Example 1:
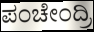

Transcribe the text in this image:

ಪಂಚೇಂದ್ರಿ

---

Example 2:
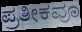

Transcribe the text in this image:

ಪ್ರತೀಕವೂ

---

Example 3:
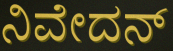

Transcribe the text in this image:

ನಿವೇದನ್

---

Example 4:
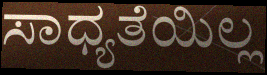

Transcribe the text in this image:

ಸಾಧ್ಯತೆಯಿಲ್ಲ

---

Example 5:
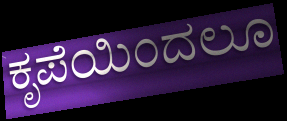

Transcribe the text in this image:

ಕೃಪೆಯಿಂದಲೂ